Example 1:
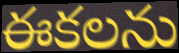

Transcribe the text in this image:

ఈకలను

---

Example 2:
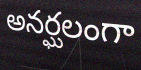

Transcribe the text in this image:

అనర్ఘలంగా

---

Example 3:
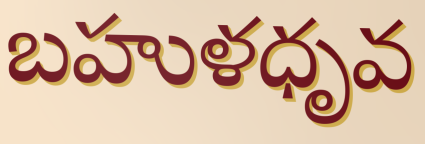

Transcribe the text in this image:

బహుళధృవ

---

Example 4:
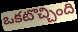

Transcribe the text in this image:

ఒకటొచ్చింది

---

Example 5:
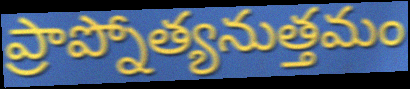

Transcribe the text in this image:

ప్రాప్నోత్యనుత్తమం